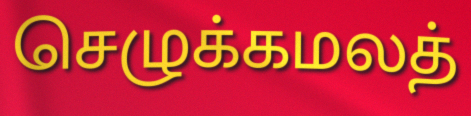
செழுக்கமலத்